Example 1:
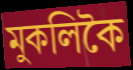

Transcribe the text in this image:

মুকলিকৈ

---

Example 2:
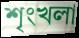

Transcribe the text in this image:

শৃংখলা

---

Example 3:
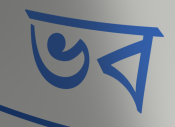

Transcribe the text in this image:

ভব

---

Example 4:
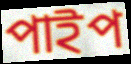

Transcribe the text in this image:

পাইপ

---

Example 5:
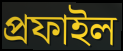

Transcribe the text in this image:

প্ৰফাইল